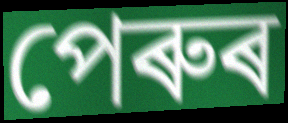
পেৰুৰ